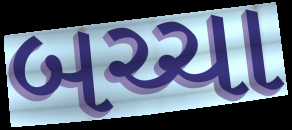
બચ્ચા